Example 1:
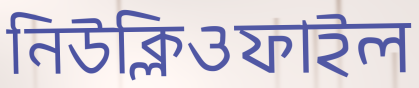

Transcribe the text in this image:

নিউক্লিওফাইল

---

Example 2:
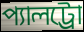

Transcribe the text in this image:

প্যালট্রো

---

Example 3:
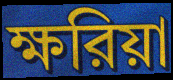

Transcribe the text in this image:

ক্ষরিয়া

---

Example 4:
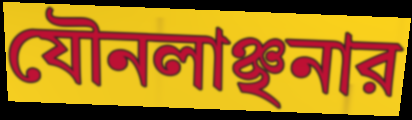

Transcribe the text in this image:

যৌনলাঞ্ছনার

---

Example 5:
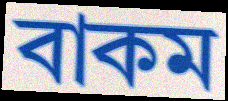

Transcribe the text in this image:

বাকম